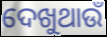
ଦେଖୁଥାଉଁ